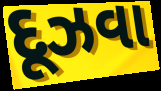
દૂઝવા